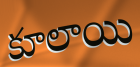
కూలాయి